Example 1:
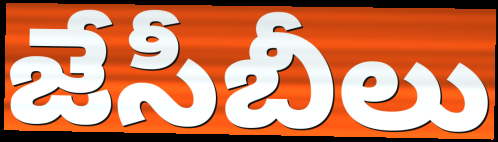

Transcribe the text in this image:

జేసీబీలు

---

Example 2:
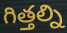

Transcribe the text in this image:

గిత్తల్ని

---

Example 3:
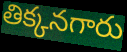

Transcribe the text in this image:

తిక్కనగారు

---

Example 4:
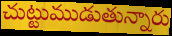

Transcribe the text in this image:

చుట్టుముడుతున్నారు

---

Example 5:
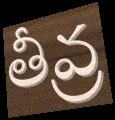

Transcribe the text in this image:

తీవ్ర